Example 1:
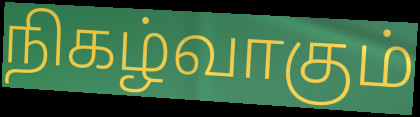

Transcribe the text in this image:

நிகழ்வாகும்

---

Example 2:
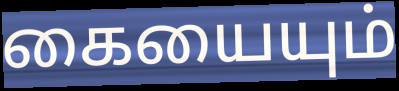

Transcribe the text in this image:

கையையும்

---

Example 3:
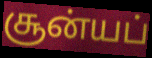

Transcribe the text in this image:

சூன்யப்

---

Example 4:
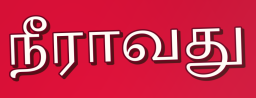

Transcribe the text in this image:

நீராவது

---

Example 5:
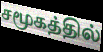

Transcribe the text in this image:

சமூகத்தில்